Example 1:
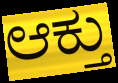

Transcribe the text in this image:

ಆಕ್ತು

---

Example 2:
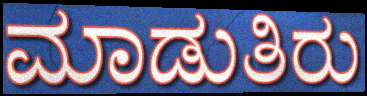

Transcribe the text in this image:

ಮಾಡುತಿರು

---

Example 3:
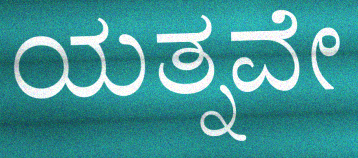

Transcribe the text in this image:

ಯತ್ನವೇ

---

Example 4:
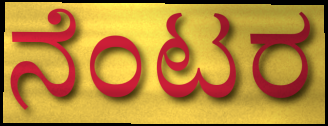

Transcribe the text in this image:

ನೆಂಟರ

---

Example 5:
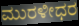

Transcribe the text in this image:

ಮುರಳೀಧರ